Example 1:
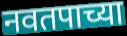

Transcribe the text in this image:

नवतपाच्या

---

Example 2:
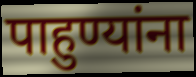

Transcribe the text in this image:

पाहुण्यांना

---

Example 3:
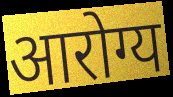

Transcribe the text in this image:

आरोग्य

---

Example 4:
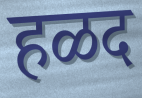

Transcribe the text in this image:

हळद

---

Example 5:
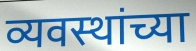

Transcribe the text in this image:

व्यवस्थांच्या